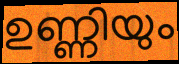
ഉണ്ണിയും